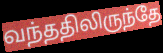
வந்ததிலிருந்தே